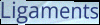
Ligaments